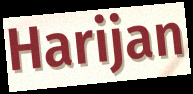
Harijan